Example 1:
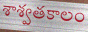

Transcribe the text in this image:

శాశ్వతకాలం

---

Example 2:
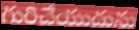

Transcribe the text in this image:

గురిచేయుదును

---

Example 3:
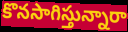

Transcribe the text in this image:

కొనసాగిస్తున్నారా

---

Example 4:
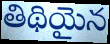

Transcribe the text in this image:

తిథియైన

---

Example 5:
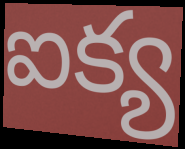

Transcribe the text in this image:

ఐక్య